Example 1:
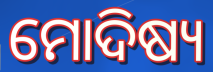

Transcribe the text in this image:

ମୋଦିଷ୍ୟ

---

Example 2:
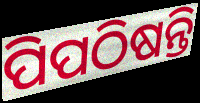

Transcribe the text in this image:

ପିପଠିଷନ୍ତି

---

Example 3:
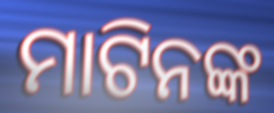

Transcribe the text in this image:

ମାଟିନଙ୍କ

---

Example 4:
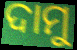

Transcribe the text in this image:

ଦାମୁ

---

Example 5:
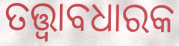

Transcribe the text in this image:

ତତ୍ତ୍ୱାବଧାରକ